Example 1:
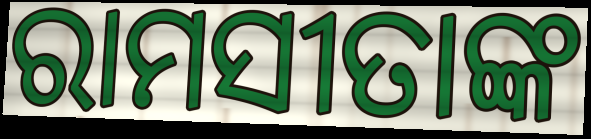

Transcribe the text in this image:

ରାମସୀତାଙ୍କ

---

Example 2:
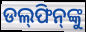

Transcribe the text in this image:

ଡଲ୍‌ଫିନ୍‌ଙ୍କୁ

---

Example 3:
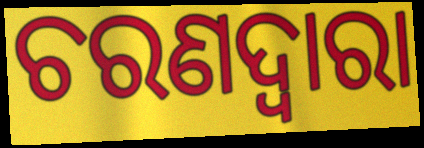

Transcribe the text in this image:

ଚରଣଦ୍ୱାରା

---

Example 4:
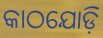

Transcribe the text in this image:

କାଠଯୋଡ଼ି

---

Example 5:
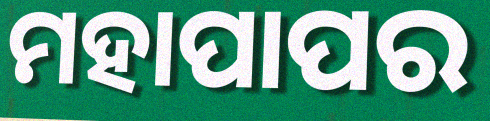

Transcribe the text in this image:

ମହାପାପର